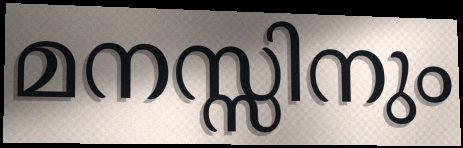
മനസ്സിനും